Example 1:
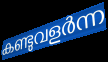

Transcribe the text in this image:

കണ്ടുവളർന്ന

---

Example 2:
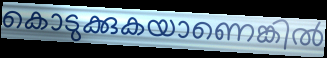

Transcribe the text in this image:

കൊടുക്കുകയാണെങ്കിൽ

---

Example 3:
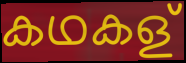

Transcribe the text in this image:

കഥകള്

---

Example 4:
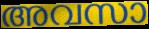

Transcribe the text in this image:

അവസാ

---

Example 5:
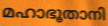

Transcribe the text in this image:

മഹാഭൂതാനി